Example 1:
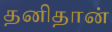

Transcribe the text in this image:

தனிதான்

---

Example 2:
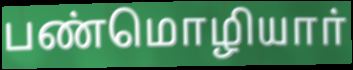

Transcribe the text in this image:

பண்மொழியார்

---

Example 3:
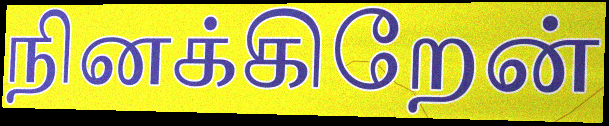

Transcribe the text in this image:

நினக்கிறேன்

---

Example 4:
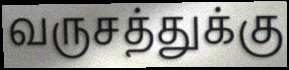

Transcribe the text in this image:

வருசத்துக்கு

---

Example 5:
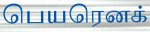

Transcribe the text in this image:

பெயரெனக்